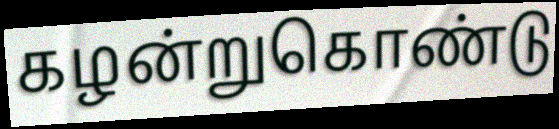
கழன்றுகொண்டு